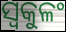
ସ୍ୱକୁଳଂ